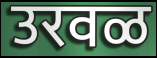
उरवळ